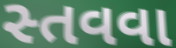
સ્તવવા